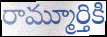
రామ్మూర్తికి